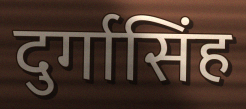
दुर्गासिंह